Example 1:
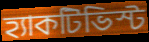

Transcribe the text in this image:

হ্যাকটিভিস্ট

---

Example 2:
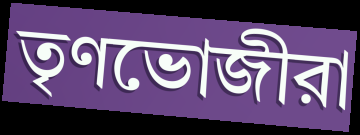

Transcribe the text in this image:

তৃণভোজীরা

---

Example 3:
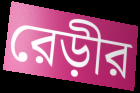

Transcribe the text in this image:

রেড়ীর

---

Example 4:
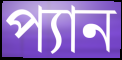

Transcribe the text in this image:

প্যান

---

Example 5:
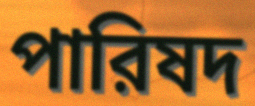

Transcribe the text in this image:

পারিষদ